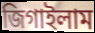
জিগাইলাম